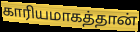
காரியமாகத்தான்